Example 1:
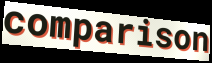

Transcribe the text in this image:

comparison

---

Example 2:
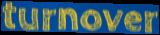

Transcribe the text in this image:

turnover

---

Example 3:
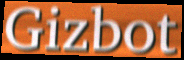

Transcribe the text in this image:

Gizbot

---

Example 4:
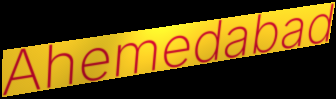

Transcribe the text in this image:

Ahemedabad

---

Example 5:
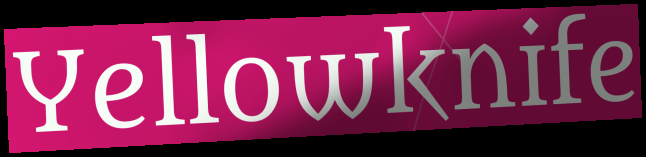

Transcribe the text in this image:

Yellowknife